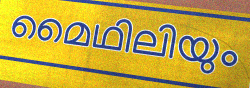
മൈഥിലിയും